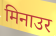
मिनाउर